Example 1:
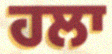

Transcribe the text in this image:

ਹਲਾ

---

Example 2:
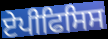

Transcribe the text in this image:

ਏਪੀਫਿਸਿਸ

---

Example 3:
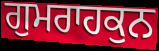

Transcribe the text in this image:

ਗੁਮਰਾਹਕੁਨ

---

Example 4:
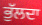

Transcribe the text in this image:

ਭੁੱਲਦਾ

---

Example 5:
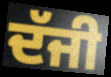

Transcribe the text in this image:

ਦੱਜੀ